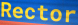
Rector